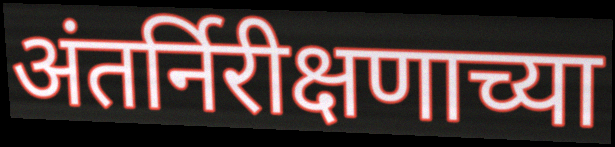
अंतर्निरीक्षणाच्या